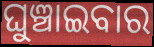
ଘୁଞ୍ଚାଇବାର